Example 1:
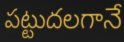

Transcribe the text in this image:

పట్టుదలగానే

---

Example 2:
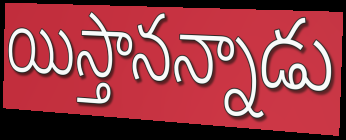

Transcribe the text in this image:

యిస్తానన్నాడు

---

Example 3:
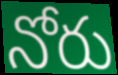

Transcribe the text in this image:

నోరు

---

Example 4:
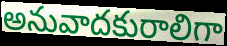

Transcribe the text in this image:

అనువాదకురాలిగా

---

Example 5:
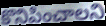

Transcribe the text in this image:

కొనిపించాలని